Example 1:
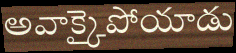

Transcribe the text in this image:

అవాక్కైపోయాడు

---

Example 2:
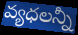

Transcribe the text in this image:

వ్యధలన్నీ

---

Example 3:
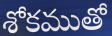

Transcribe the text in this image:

శోకముతో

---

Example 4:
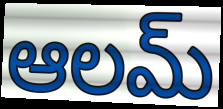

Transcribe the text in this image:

ఆలమ్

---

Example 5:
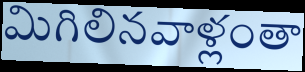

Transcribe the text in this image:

మిగిలినవాళ్లంతా